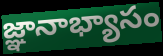
జ్ఞానాభ్యాసం